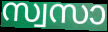
സ്വസാ